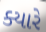
ક્‍યારે